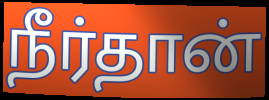
நீர்தான்